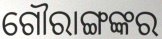
ଗୌରାଙ୍ଗଙ୍କର